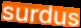
surdus